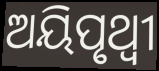
ଅୟିପୃଥ୍ୱୀ